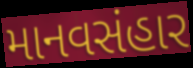
માનવસંહાર